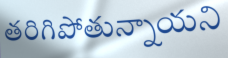
తరిగిపోతున్నాయని